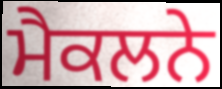
ਮੈਕਲਨੇ